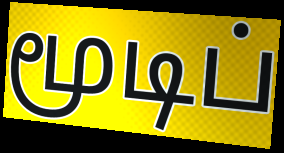
மூடிப்